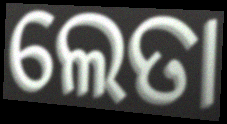
ଲେତା